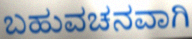
ಬಹುವಚನವಾಗಿ